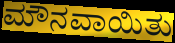
ಮೌನವಾಯಿತು